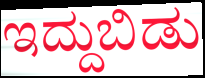
ಇದ್ದುಬಿಡು